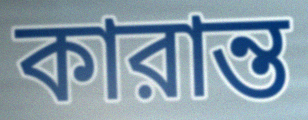
কারান্ত